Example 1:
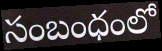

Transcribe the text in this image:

సంబంధంలో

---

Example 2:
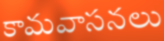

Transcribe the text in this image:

కామవాసనలు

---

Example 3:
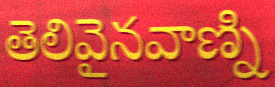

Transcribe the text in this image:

తెలివైనవాణ్ని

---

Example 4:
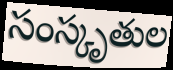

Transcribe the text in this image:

సంస్కృతుల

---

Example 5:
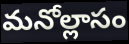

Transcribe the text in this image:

మనోల్లాసం